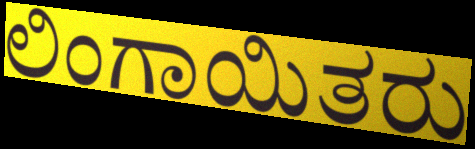
ಲಿಂಗಾಯಿತರು